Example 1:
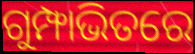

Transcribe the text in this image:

ଗୁମ୍ଫାଭିତରେ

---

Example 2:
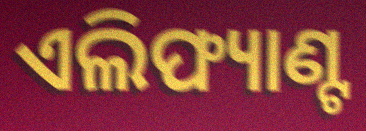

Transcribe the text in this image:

ଏଲିଫ୍ୟାଣ୍ଟ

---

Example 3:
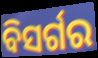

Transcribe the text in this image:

ବିସର୍ଗର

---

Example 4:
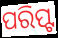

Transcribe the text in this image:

ପରିପ୍ଟ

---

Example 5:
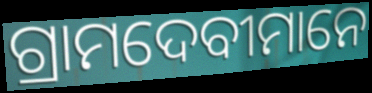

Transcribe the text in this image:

ଗ୍ରାମଦେବୀମାନେ